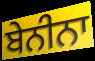
ਬੇਨੀਨਾ